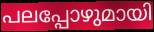
പലപ്പോഴുമായി